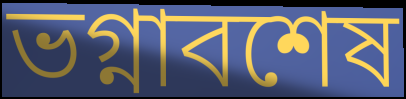
ভগ্নাবশেষ